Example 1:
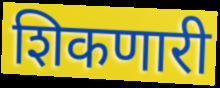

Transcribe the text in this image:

शिकणारी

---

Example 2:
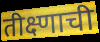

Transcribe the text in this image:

तीक्ष्णाची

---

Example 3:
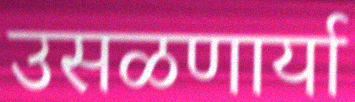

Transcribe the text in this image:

उसळणार्या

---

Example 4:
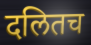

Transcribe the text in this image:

दलितच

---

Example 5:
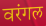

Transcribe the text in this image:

वरंगल